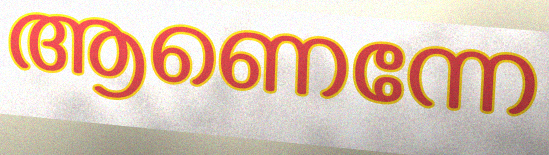
ആണെന്നേ